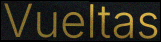
Vueltas